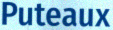
Puteaux